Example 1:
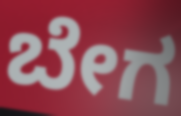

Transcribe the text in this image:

ಬೇಗ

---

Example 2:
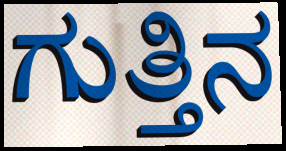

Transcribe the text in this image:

ಗುತ್ತಿನ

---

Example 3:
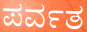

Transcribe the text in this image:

ಪರ್ವತ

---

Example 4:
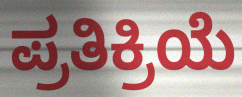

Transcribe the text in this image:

ಪ್ರತಿಕ್ರಿಯೆ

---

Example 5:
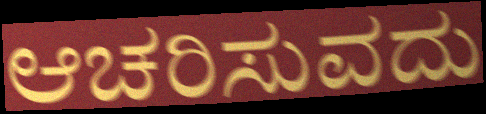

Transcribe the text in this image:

ಆಚರಿಸುವದು